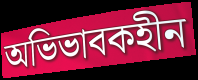
অভিভাবকহীন